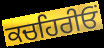
ਕਚਹਿਰੀਓਂ